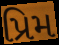
પ્રિમ